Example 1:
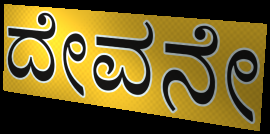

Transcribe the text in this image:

ದೇವನೇ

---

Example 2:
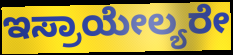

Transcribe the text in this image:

ಇಸ್ರಾಯೇಲ್ಯರೇ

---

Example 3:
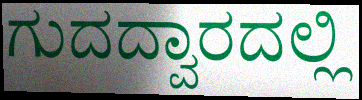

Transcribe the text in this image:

ಗುದದ್ವಾರದಲ್ಲಿ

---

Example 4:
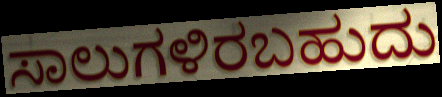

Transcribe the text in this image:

ಸಾಲುಗಳಿರಬಹುದು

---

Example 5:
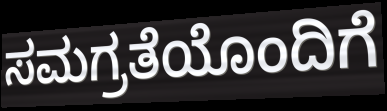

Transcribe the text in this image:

ಸಮಗ್ರತೆಯೊಂದಿಗೆ